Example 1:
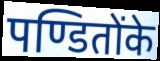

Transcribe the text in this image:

पण्डितोंके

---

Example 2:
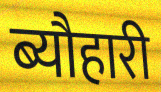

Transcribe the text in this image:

ब्यौहारी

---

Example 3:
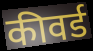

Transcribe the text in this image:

कीवर्ड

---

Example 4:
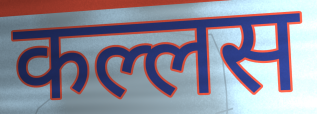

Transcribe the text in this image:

कल्लस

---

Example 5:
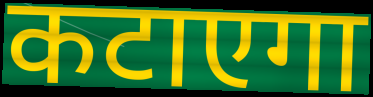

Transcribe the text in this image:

कटाएगा